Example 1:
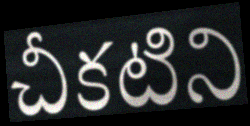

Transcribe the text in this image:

చీకటిని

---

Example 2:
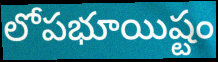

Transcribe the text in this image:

లోపభూయిష్టం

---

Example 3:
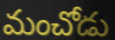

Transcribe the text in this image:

మంచోడు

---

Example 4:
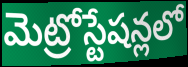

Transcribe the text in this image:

మెట్రోస్టేషన్లలో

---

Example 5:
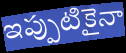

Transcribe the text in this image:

ఇప్పుటికైనా